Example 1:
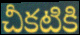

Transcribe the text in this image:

చీకటికి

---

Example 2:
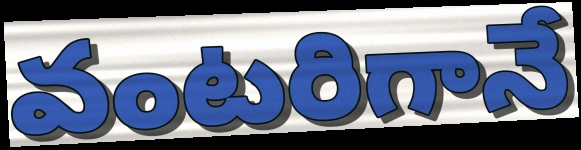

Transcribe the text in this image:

వంటరిగానే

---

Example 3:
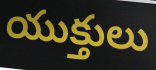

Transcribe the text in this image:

యుక్తులు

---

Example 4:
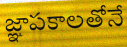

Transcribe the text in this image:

జ్ఞాపకాలతోనే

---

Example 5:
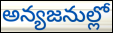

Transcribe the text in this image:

అన్యజనుల్లో